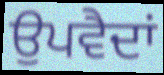
ਉਪਵੈਦਾਂ